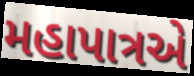
મહાપાત્રએ